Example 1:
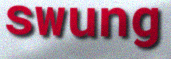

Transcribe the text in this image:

swung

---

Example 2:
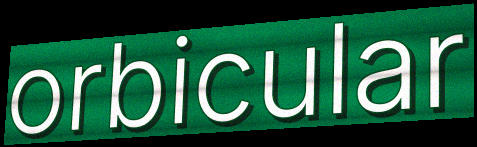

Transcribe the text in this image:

orbicular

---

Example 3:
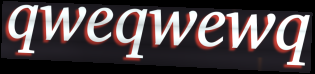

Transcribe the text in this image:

qweqwewq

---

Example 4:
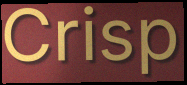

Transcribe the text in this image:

Crisp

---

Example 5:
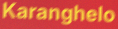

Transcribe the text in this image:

Karanghelo